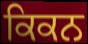
ਕਿਕਨ